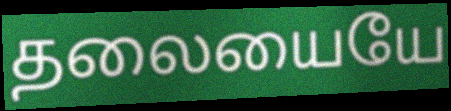
தலையையே